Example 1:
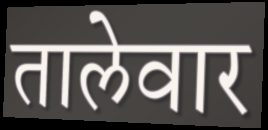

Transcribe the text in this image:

तालेवार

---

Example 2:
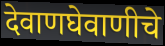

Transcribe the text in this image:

देवाणघेवाणीचे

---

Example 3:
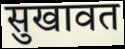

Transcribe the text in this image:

सुखावत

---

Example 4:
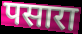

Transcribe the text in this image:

पसारा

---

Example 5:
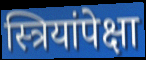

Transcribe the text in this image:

स्त्रियांपेक्षा